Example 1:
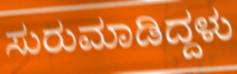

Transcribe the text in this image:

ಸುರುಮಾಡಿದ್ದಳು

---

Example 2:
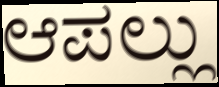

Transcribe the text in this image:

ಆಪಲ್ಲು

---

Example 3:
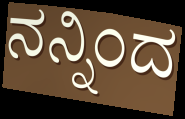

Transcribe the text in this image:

ನನ್ನಿಂದ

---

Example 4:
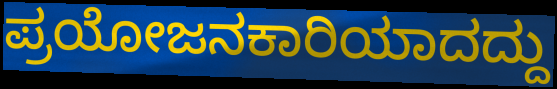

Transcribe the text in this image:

ಪ್ರಯೋಜನಕಾರಿಯಾದದ್ದು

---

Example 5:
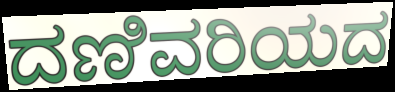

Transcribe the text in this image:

ದಣಿವರಿಯದ